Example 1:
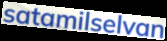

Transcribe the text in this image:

satamilselvan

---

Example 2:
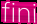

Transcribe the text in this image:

fini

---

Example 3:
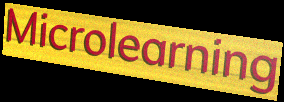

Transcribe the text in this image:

Microlearning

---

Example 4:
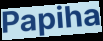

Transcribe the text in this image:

Papiha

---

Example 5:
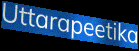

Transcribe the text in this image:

Uttarapeetika